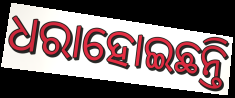
ଧରାହୋଇଛନ୍ତି